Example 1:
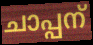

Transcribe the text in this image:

ചാപ്പന്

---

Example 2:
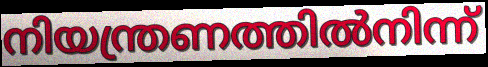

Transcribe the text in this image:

നിയന്ത്രണത്തിൽനിന്ന്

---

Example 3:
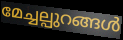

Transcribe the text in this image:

മേച്ചല്പുറങ്ങൾ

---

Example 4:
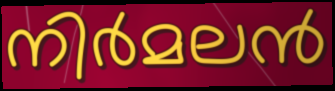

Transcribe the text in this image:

നിർമലൻ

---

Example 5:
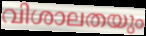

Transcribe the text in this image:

വിശാലതയും